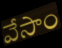
వేసాం